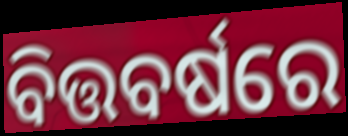
ବିତ୍ତବର୍ଷରେ